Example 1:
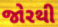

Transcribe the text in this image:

જોરથી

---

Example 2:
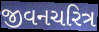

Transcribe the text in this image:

જીવનચરિત્ર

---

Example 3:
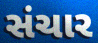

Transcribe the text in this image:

સંચાર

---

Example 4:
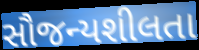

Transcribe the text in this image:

સૌજન્યશીલતા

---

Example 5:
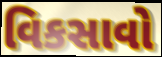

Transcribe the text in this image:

વિકસાવો